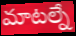
మాటల్నే